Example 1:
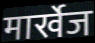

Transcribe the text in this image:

मार्खेज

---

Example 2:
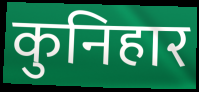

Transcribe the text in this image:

कुनिहार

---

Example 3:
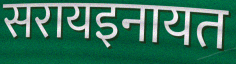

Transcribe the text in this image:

सरायइनायत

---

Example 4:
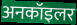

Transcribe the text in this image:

अनकॉइलर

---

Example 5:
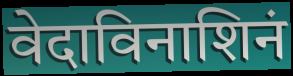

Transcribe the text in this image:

वेदाविनाशिनं